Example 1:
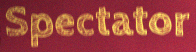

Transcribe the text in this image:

Spectator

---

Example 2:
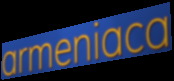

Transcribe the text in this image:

armeniaca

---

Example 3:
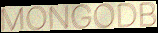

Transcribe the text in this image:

MONGODB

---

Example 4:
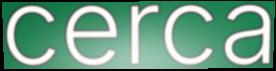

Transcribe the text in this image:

cerca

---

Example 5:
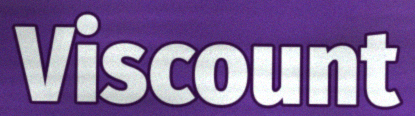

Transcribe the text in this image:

Viscount